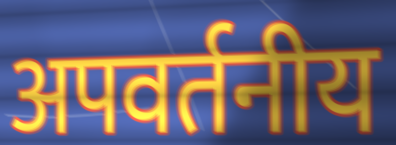
अपवर्तनीय